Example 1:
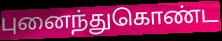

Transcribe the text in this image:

புனைந்துகொண்ட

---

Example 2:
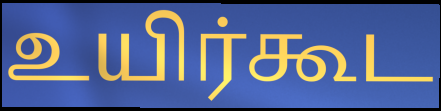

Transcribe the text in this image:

உயிர்கூட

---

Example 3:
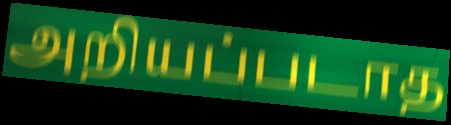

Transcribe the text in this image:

அறியப்படாத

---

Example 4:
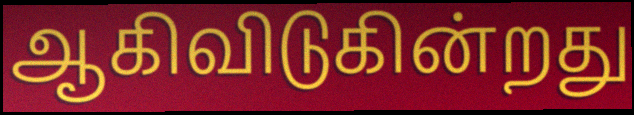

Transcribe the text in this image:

ஆகிவிடுகின்றது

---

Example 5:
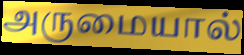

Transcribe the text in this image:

அருமையால்